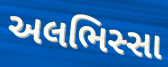
અલભિસ્સા